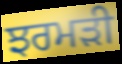
ਝਰਮੜੀ